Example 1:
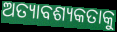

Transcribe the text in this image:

ଅତ୍ୟାବଶ୍ୟକତାକୁ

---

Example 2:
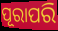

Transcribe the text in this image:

ପୂରାପରି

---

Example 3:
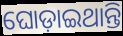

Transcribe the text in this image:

ଘୋଡ଼ାଇଥାନ୍ତି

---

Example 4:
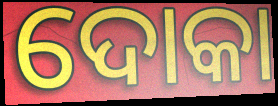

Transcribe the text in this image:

ଦୋକା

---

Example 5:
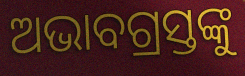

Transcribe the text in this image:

ଅଭାବଗ୍ରସ୍ତଙ୍କୁ